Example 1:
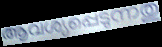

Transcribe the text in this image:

ആവശ്യപ്പെടുന്നതു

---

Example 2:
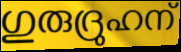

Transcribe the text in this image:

ഗുരുദ്രുഹന്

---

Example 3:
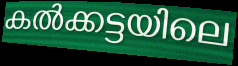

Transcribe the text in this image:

കൽക്കട്ടയിലെ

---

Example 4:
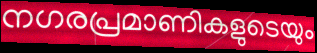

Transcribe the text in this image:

നഗരപ്രമാണികളുടെയും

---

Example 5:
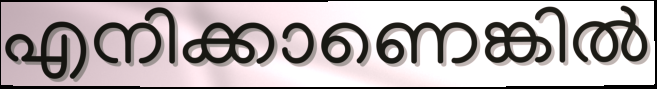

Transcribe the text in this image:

എനിക്കാണെങ്കിൽ